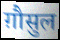
ग़ौसुल